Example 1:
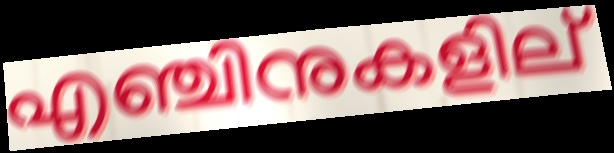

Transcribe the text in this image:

എഞ്ചിനുകളില്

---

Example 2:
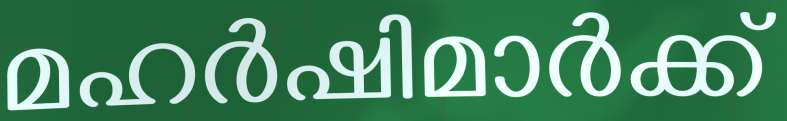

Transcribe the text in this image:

മഹർഷിമാർക്ക്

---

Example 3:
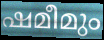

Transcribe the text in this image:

ഷമീമും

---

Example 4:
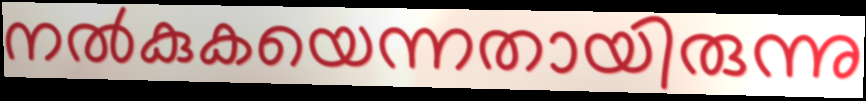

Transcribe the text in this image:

നൽകുകയെന്നതായിരുന്നു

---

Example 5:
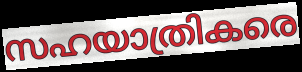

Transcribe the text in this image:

സഹയാത്രികരെ